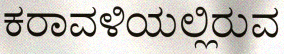
ಕರಾವಳಿಯಲ್ಲಿರುವ